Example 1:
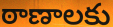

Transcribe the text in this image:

ఠాణాలకు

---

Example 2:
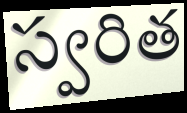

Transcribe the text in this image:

స్వరిత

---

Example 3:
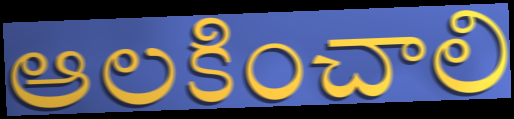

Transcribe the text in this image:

ఆలకించాలి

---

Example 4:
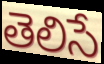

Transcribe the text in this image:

తెలిసే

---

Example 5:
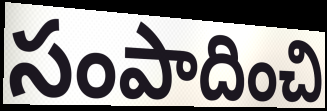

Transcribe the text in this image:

సంపాదించి